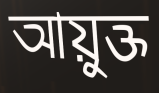
আয়ুক্ত